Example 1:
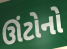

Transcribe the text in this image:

ઊંટોનો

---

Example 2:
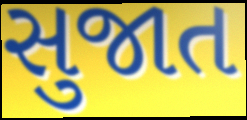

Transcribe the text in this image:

સુજાત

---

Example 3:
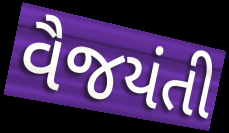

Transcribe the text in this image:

વૈજયંતી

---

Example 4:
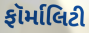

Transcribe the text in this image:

ફૉર્માલિટી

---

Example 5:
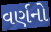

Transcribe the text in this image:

વર્ણનો